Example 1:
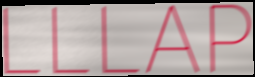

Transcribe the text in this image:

LLLAP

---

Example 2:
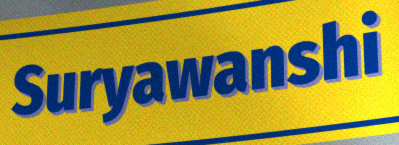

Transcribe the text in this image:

Suryawanshi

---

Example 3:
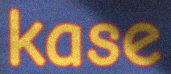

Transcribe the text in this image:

kase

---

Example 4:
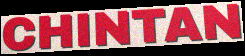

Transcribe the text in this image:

CHINTAN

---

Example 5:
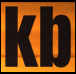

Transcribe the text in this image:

kb